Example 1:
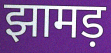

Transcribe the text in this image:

झामड़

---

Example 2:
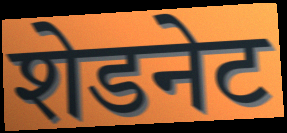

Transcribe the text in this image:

शेडनेट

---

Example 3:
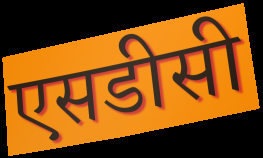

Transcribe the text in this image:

एसडीसी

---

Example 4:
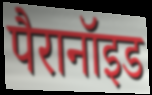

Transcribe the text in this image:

पैरानॉइड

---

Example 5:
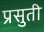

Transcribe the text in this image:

प्रसुती